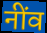
नींव